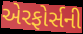
એરફોર્સની